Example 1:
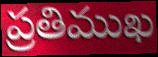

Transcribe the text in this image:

ప్రతిముఖ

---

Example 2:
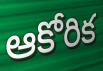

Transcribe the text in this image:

ఆకోరిక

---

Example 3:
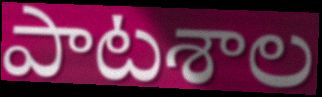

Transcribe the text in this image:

పాటశాల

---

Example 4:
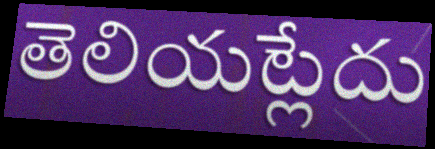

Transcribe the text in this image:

తెలియట్లేదు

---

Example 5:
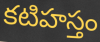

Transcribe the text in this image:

కటిహస్తం